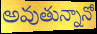
అవుతున్నానో